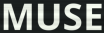
MUSE